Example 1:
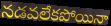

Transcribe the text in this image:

నడవలేకపోయినా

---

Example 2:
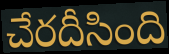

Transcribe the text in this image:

చేరదీసింది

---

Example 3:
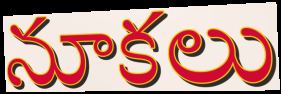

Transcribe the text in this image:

నూకలు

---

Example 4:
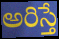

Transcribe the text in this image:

అరిస్తే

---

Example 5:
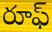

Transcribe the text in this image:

రూఫ్